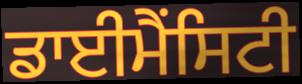
ਡਾਈਮੈਂਸਿਟੀ